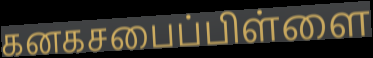
கனகசபைப்பிள்ளை